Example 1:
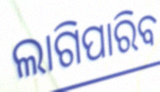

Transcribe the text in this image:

ଲାଗିପାରିବ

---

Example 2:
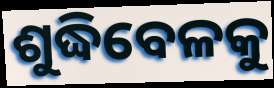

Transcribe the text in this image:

ଶୁଦ୍ଧିବେଳକୁ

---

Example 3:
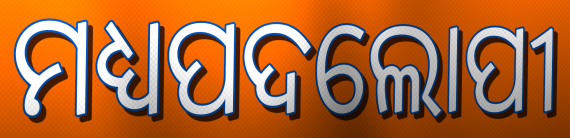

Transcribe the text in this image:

ମଧ୍ଯପଦଲୋପୀ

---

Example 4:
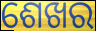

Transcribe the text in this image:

ଶେଖର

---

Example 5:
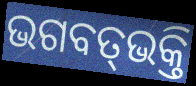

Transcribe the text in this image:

ଭଗବତ୍‌ଭକ୍ତି